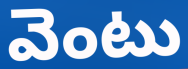
వెంటు